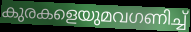
കുരകളെയുമവഗണിച്ച്